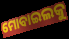
ମୋବାଇଲକୁ